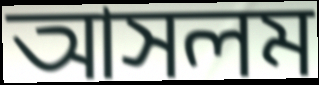
আসলম